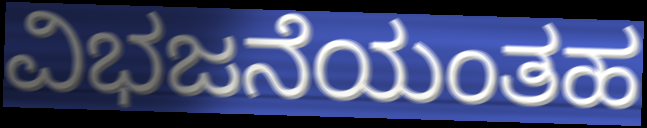
ವಿಭಜನೆಯಂತಹ